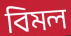
বিমল